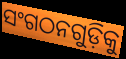
ସଂଗଠନଗୁଡ଼ିକୁ